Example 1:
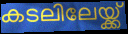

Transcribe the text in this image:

കടലിലേയ്ക്ക്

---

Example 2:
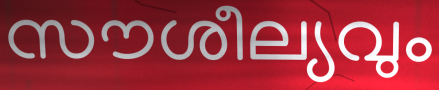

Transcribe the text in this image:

സൗശീല്യവും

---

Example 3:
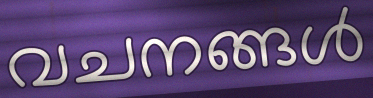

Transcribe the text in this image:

വചനങ്ങൾ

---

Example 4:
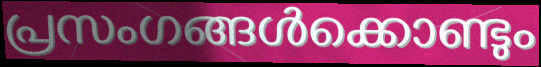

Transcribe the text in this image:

പ്രസംഗങ്ങൾക്കൊണ്ടും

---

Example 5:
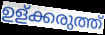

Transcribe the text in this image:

ഉള്ക്കരുത്ത്